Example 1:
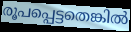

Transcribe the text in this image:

രൂപപ്പെട്ടതെങ്കിൽ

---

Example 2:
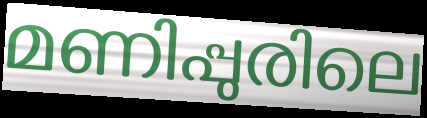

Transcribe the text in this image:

മണിപ്പുരിലെ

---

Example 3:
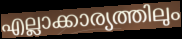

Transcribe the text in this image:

എല്ലാക്കാര്യത്തിലും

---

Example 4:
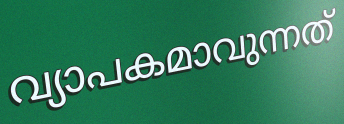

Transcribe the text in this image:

വ്യാപകമാവുന്നത്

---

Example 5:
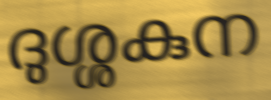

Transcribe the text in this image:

ദുശ്ശകുന